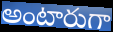
అంటారుగా